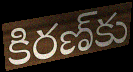
కిరణ్‌కు